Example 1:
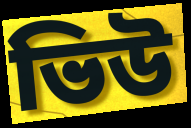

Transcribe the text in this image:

ভিউ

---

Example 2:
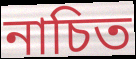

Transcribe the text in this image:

নাচিত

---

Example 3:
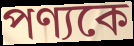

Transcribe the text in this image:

পণ্যকে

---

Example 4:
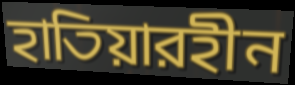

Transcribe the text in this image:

হাতিয়ারহীন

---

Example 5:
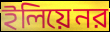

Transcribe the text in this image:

ইলিয়েনর